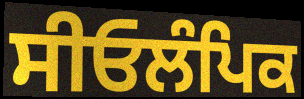
ਸੀਓਲੰਪਿਕ